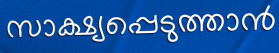
സാക്ഷ്യപ്പെടുത്താൻ